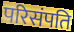
परिसंपति